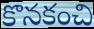
కొనకంచి